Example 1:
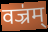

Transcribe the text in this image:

वज्र॑म्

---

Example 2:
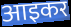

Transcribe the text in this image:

आइकर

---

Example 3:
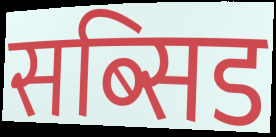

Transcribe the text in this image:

सब्सिड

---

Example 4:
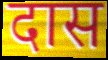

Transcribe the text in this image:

दास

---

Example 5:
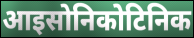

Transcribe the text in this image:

आइसोनिकोटिनिक